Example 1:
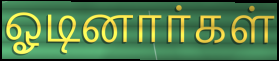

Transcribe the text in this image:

ஓடினார்கள்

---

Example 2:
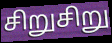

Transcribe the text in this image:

சிறுசிறு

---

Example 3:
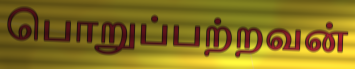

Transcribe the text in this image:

பொறுப்பற்றவன்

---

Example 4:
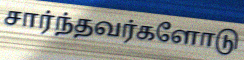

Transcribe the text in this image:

சார்ந்தவர்களோடு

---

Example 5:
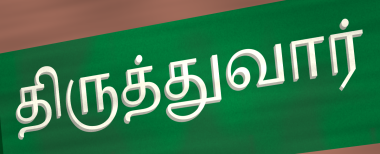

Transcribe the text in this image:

திருத்துவார்